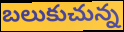
బలుకుచున్న